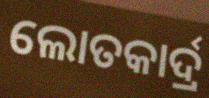
ଲୋତକାର୍ଦ୍ର